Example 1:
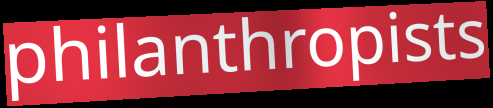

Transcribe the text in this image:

philanthropists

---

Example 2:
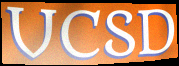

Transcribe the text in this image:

UCSD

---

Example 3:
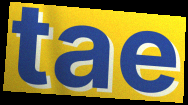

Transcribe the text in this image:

tae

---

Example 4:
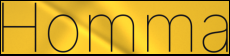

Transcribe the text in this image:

Homma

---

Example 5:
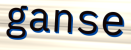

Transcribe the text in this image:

ganse